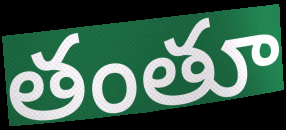
తంతూ